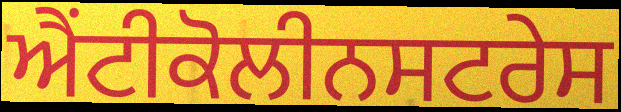
ਐਂਟੀਕੋਲੀਨਸਟਰੇਸ